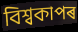
বিশ্বকাপৰ